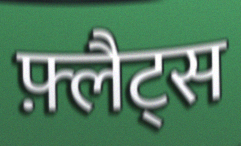
फ़्लैट्स